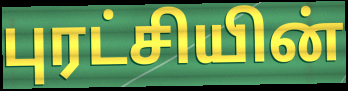
புரட்சியின்